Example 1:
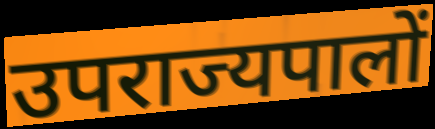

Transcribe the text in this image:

उपराज्यपालों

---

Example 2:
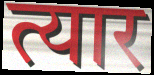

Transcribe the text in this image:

त्यार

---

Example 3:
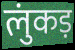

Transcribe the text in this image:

लुंकड़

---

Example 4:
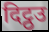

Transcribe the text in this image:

दिट्ठउ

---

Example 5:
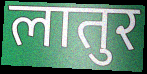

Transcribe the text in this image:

लातुर